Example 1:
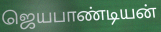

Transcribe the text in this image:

ஜெயபாண்டியன்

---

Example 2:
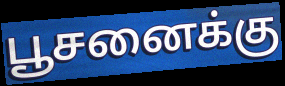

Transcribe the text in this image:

பூசனைக்கு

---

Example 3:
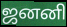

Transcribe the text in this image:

ஜனனி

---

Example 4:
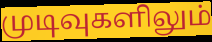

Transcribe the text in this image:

முடிவுகளிலும்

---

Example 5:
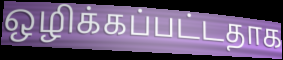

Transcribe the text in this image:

ஒழிக்கப்பட்டதாக